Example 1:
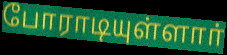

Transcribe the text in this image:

போராடியுள்ளார்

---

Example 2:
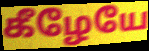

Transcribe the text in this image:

கீழேயே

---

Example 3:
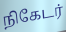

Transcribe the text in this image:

நிகேடர்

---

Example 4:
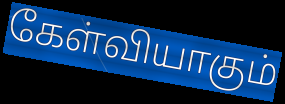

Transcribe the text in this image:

கேள்வியாகும்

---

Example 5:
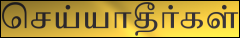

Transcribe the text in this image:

செய்யாதீர்கள்